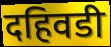
दहिवडी